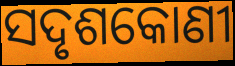
ସଦୃଶକୋଣୀ